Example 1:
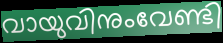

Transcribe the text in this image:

വായുവിനുംവേണ്ടി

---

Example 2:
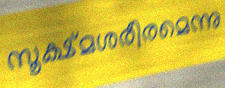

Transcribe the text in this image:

സൂക്ഷ്മശരീരമെന്നു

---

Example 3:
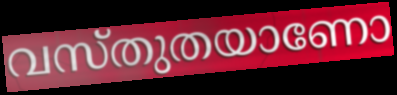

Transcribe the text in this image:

വസ്തുതയാണോ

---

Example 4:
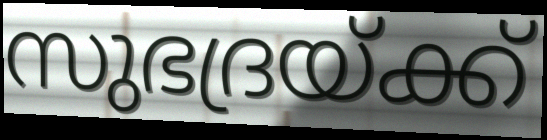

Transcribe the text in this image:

സുഭദ്രയ്ക്ക്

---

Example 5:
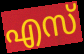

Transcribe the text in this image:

എസ്